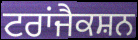
ਟਰਾਂਜੈਕਸ਼ਨ